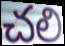
చలి